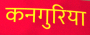
कनगुरिया